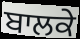
ਬਾਲਕੇ